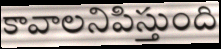
కావాలనిపిస్తుంది